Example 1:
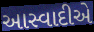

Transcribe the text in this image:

આસ્વાદીએ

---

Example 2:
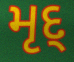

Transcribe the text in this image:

મૃદ્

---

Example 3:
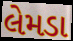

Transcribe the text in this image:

લેમડા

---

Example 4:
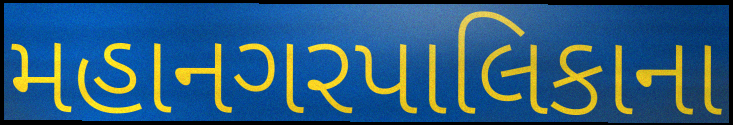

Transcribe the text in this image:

મહાનગરપાલિકાના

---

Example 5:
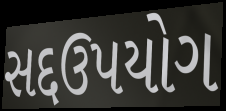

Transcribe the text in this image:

સદ્દઉપયોગ